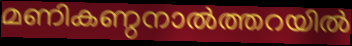
മണികണ്ഠനാൽത്തറയിൽ